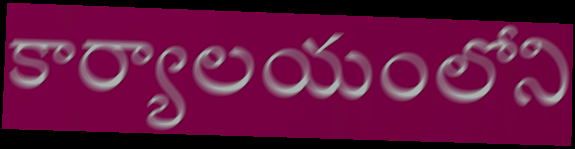
కార్యాలయంలోని